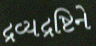
દ્રવ્યદ્રષ્ટિને